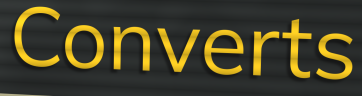
Converts